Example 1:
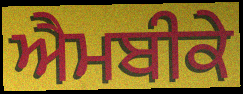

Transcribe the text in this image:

ਐਮਬੀਕੇ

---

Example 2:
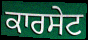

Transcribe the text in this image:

ਕਾਰਸੇਟ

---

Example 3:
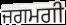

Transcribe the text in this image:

ਜਗਮਗੀ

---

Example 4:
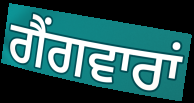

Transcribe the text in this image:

ਗੈਂਗਵਾਰਾਂ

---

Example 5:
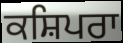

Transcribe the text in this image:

ਕਸ਼ਿਪਰਾ